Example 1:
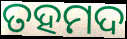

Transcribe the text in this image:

ତହମଦ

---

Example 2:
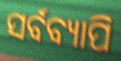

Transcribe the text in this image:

ସର୍ବବ୍ୟାପି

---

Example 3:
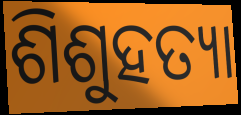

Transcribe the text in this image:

ଶିଶୁହତ୍ୟା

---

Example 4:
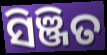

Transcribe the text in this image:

ସିଞ୍ଜିତ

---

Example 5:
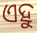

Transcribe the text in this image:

ଏହୁ